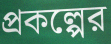
প্রকল্পের